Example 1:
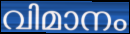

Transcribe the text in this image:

വിമാനം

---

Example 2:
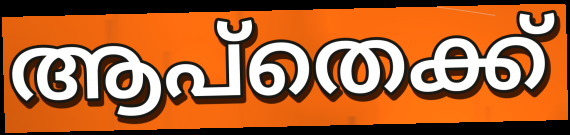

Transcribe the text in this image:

ആപ്തെക്ക്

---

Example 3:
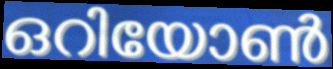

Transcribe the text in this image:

ഒറിയോൺ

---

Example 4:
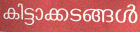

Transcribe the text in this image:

കിട്ടാക്കടങ്ങൾ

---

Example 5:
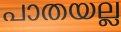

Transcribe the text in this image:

പാതയല്ല